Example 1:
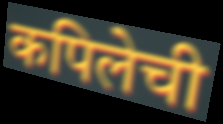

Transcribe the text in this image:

कपिलेची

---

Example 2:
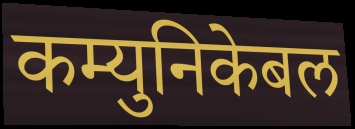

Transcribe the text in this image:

कम्युनिकेबल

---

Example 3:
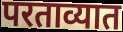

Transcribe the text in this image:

परताव्यात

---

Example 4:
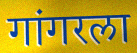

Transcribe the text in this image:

गांगरला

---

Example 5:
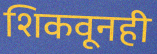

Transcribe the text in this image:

शिकवूनही